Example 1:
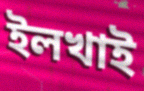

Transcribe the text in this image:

ইলখাই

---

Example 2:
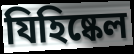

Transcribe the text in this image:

যিহিষ্কেল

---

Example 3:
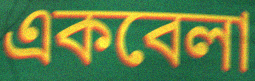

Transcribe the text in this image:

একবেলা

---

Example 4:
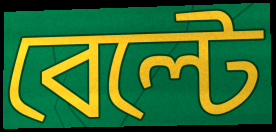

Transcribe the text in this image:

বেল্টে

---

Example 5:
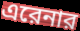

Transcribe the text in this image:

এরেনার